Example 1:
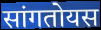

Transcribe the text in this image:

सांगतोयस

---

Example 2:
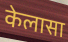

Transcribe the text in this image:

केलासा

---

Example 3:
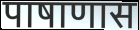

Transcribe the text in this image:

पाषाणास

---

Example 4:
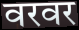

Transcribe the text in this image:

वरवर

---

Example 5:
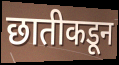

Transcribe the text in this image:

छातीकडून